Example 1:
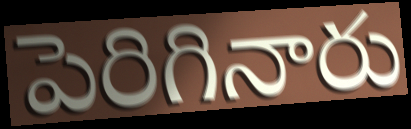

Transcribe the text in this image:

పెరిగినారు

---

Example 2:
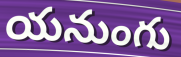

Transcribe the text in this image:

యనుంగు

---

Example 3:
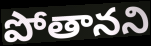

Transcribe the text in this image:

పోతానని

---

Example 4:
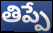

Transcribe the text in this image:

తిప్పే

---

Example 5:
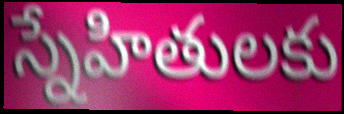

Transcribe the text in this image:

స్నేహితులకు